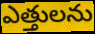
ఎత్తులను